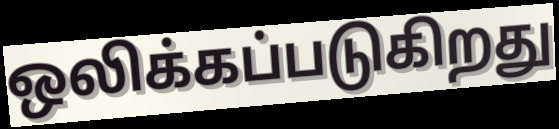
ஒலிக்கப்படுகிறது